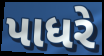
પાધરે